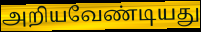
அறியவேண்டியது